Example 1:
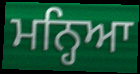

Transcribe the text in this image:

ਮਨ੍ਹਿਆ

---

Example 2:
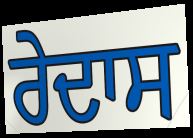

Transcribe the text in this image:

ਰੇਦਾਸ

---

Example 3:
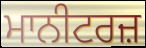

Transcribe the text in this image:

ਮਾਨੀਟਰਜ਼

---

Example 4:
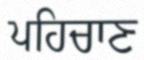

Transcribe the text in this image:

ਪਹਿਚਾਣ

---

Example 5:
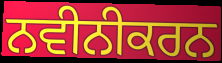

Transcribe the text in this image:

ਨਵੀਨੀਕਰਨ